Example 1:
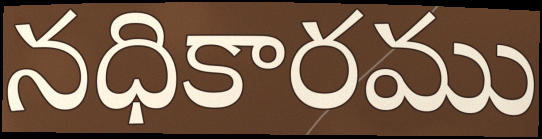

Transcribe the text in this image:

నధికారము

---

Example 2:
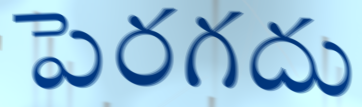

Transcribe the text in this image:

పెరగదు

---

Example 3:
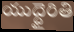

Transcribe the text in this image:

యుద్ధైరితి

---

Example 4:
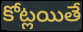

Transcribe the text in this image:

కోట్లయితే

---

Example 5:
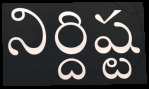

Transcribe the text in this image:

నిర్దిష్ట